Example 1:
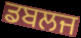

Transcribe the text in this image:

ਡਬਲਜ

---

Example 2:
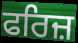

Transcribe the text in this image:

ਫਰਿਜ਼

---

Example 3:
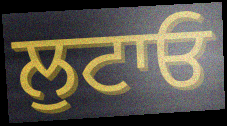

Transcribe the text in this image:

ਲੁਟਾਓ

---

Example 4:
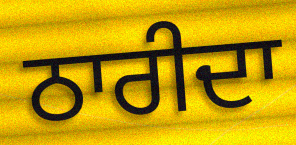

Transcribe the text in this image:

ਠਾਰੀਦਾ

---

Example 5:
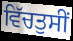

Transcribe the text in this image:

ਵਿੱਚਤੁਸੀਂ